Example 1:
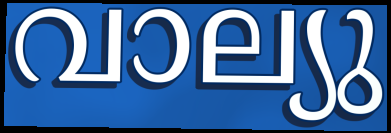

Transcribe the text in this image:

വാല്യു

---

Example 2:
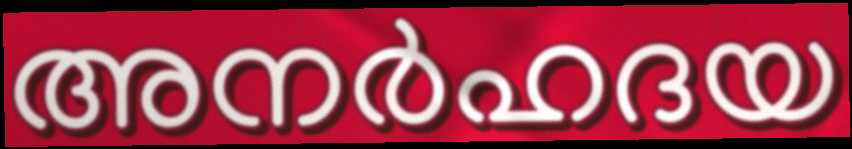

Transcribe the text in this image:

അനർഹദയ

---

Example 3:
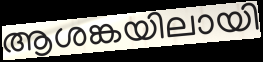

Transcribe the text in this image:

ആശങ്കയിലായി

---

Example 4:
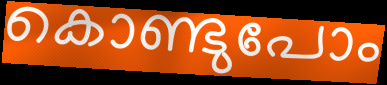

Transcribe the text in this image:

കൊണ്ടുപോം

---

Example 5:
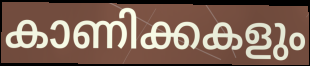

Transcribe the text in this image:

കാണിക്കകളും